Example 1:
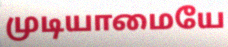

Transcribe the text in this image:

முடியாமையே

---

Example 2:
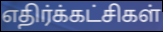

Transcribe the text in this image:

எதிர்க்கட்சிகள்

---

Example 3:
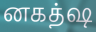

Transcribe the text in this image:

னகத்ஷ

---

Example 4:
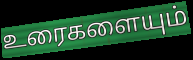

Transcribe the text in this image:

உரைகளையும்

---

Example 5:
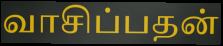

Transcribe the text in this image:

வாசிப்பதன்